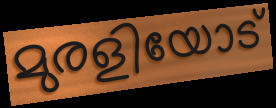
മുരളിയോട്